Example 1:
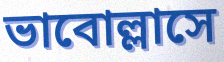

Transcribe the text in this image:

ভাবোল্লাসে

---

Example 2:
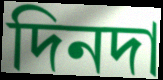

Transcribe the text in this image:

দিনদা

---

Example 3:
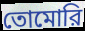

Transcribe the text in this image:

তোমোরি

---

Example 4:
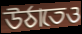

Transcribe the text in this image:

উঠাতেও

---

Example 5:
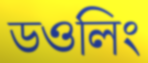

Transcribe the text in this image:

ডওলিং